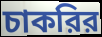
চাকরির